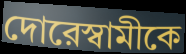
দোরেস্বামীকে